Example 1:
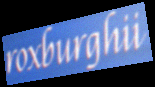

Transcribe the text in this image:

roxburghii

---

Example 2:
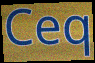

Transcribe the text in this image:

Ceq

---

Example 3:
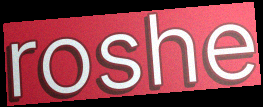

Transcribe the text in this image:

roshe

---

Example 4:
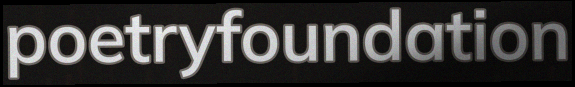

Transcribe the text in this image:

poetryfoundation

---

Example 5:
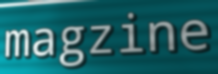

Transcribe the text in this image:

magzine